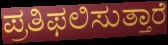
ಪ್ರತಿಫಲಿಸುತ್ತಾರೆ